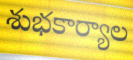
శుభకార్యాల